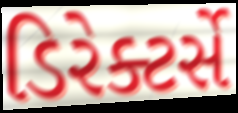
ડિરેક્ટર્સે